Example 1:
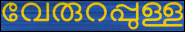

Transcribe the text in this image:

വേരുറപ്പുള്ള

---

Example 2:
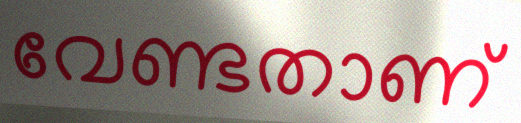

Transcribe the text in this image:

വേണ്ടതാണ്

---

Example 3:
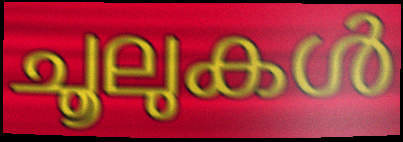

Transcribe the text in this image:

ചൂലുകൾ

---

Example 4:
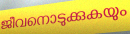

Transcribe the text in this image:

ജീവനൊടുക്കുകയും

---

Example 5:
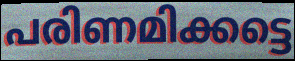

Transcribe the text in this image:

പരിണമിക്കട്ടെ